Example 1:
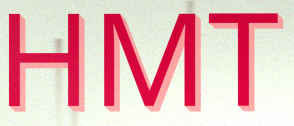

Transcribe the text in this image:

HMT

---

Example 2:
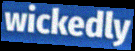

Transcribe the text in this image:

wickedly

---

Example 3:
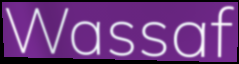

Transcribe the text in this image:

Wassaf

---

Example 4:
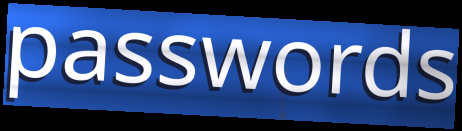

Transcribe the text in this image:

passwords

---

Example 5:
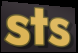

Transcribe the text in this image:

sts